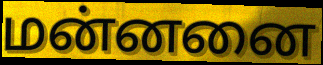
மன்னனை